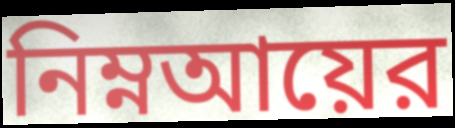
নিম্নআয়ের